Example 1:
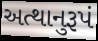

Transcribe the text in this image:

અત્થાનુરૂપં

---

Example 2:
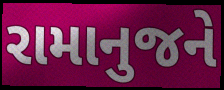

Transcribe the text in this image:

રામાનુજને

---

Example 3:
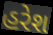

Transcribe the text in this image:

હરેશ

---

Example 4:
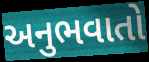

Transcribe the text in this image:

અનુભવાતો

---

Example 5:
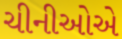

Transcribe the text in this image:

ચીનીઓએ